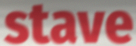
stave